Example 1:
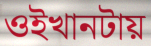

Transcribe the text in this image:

ওইখানটায়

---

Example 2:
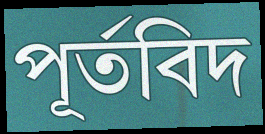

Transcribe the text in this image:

পূর্তবিদ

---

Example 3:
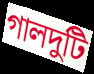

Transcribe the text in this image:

গালদুটি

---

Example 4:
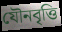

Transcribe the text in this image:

যৌনবৃত্তি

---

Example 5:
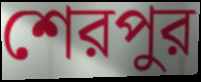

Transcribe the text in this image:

শেরপুর